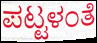
ಪಟ್ಟಳಂತೆ